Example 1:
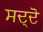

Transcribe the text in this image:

ਸਦ੍ਦੋ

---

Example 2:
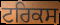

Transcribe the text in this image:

ਟਰਿਕਸ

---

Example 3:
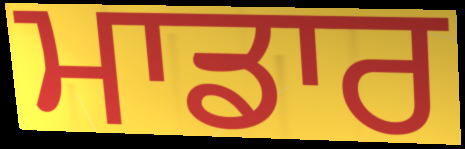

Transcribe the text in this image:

ਮਾਡਾਰ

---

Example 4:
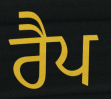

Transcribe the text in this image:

ਰੈਪ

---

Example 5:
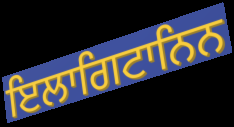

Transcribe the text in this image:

ਇਲਾਗਿਟਾਨਿਨ